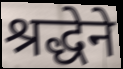
श्रद्धेने